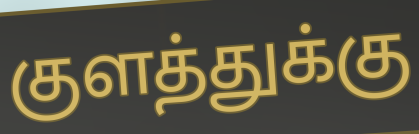
குளத்துக்கு